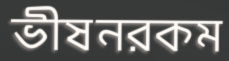
ভীষনরকম